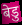
बेडु